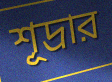
শূদ্রার